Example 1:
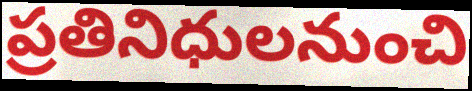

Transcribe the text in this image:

ప్రతినిధులనుంచి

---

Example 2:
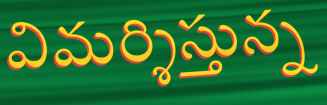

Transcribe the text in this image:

విమర్శిస్తున్న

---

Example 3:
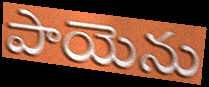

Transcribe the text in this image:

పాయెను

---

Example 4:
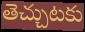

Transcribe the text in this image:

తెచ్చుటకు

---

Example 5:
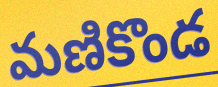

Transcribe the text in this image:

మణికొండ